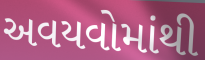
અવયવોમાંથી